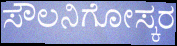
ಸೌಲನಿಗೋಸ್ಕರ